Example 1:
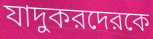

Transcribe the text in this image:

যাদুকরদেরকে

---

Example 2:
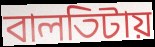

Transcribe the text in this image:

বালতিটায়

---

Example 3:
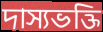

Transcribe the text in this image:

দাস্যভক্তি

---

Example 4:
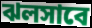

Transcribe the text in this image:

ঝলসাবে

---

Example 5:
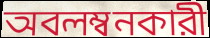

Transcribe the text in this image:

অবলম্বনকারী